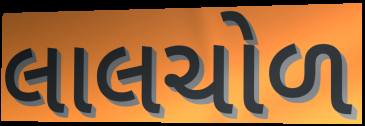
લાલચોળ